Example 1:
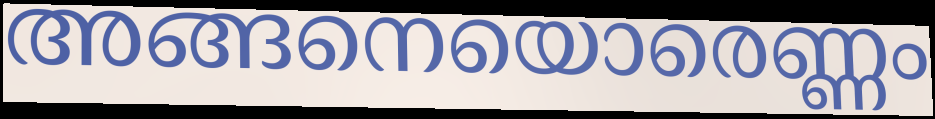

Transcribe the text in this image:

അങ്ങനെയൊരെണ്ണം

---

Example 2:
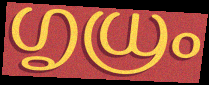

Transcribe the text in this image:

ഗൃധ്രം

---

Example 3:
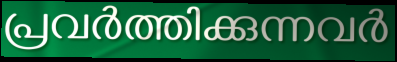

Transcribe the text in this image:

പ്രവർത്തിക്കുന്നവർ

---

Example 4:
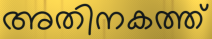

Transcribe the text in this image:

അതിനകത്ത്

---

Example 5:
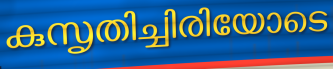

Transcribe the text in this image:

കുസൃതിച്ചിരിയോടെ